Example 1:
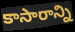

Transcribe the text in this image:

కాసారాన్ని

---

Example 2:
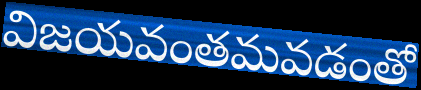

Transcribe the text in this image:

విజయవంతమవడంతో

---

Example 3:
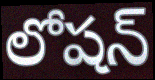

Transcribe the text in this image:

లోషన్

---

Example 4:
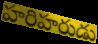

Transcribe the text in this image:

హరిహరుడు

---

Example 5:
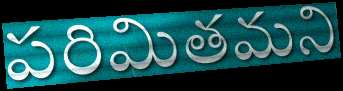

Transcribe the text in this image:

పరిమితమని